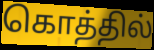
கொத்தில்